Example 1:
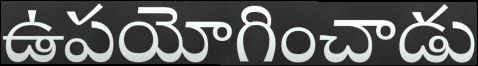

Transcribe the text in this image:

ఉపయోగించాడు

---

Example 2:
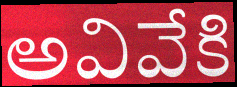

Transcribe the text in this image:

అవివేకి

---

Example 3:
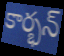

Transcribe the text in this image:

కార్భన్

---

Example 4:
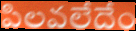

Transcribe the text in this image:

పిలవలేదేం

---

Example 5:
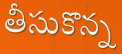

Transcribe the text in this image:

తీసుకొన్న